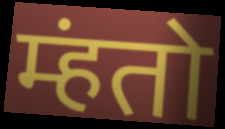
म्हंतो